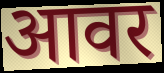
आवर